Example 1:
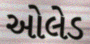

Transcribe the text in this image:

ઓલેડ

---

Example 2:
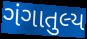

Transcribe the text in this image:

ગંગાતુલ્ય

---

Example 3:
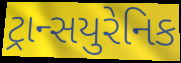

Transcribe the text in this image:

ટ્રાન્સયુરેનિક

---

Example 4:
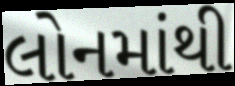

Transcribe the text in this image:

લોનમાંથી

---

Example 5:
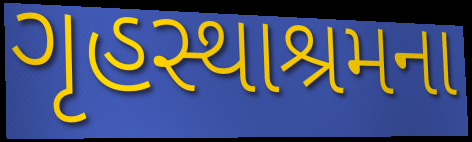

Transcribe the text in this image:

ગૃહસ્થાશ્રમના